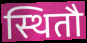
स्थितौ